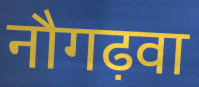
नौगढ़वा